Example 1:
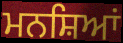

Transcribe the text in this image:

ਮਨਸ਼ਿਆਂ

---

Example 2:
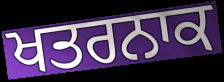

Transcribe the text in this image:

ਖਤਰਨਾਕ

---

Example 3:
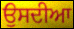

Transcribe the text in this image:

ਉਸਦੀਆ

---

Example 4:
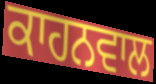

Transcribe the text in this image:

ਕਾਹਨਵਾਲ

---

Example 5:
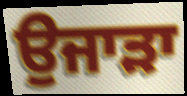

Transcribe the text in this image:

ਉਜਾੜਾ